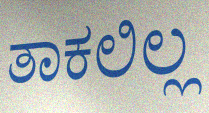
ತಾಕಲಿಲ್ಲ